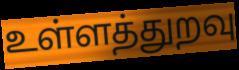
உள்ளத்துறவு